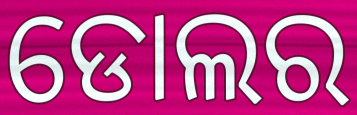
ଡୋଲର